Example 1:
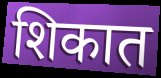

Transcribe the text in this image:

शिकात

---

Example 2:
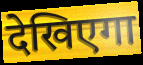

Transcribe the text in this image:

देखिएगा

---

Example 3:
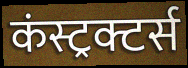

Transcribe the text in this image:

कंस्ट्रक्टर्स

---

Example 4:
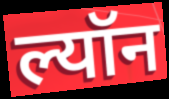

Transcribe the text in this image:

ल्यॉन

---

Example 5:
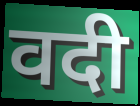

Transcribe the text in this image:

वदी